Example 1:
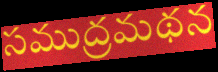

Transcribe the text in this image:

సముద్రమథన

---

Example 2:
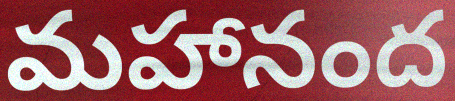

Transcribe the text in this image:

మహానంద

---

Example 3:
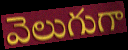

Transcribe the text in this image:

వెలుగుగా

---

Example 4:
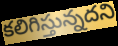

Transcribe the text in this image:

కలిగిస్తున్నదని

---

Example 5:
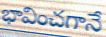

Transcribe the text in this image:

భావించగానే